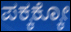
ಪಕ್ಕಕ್ಕೋ